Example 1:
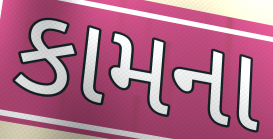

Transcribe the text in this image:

કામના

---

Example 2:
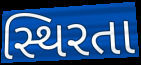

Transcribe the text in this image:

સ્થિરતા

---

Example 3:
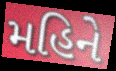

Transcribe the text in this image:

મહિને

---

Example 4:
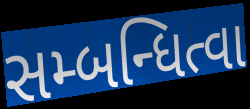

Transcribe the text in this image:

સમ્બન્ધિત્વા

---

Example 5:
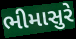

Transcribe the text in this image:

ભીમાસુરે